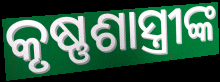
କୃଷ୍ଣଶାସ୍ତ୍ରୀଙ୍କ